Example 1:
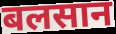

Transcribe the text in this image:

बलसान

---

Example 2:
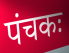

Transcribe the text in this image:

पंचकः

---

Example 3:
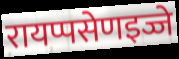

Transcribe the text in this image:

रायप्पसेणइज्जे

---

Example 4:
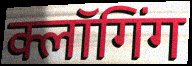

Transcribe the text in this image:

क्लॉगिंग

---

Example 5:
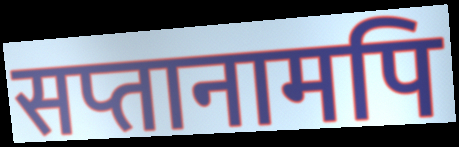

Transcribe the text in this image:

सप्तानामपि